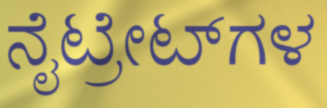
ನೈಟ್ರೇಟ್‌ಗಳ